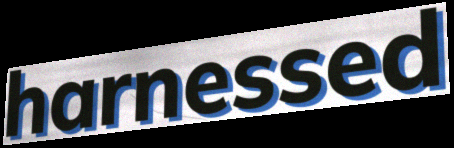
harnessed